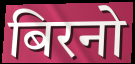
बिरनो